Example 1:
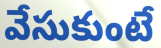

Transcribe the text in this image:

వేసుకుంటే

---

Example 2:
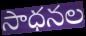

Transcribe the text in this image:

సాధనల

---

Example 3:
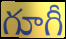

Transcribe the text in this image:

గూగీ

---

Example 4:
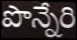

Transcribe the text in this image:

పొన్నేరి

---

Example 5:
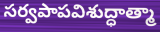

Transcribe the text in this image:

సర్వపాపవిశుద్ధాత్మా